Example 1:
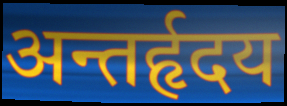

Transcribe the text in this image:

अन्तर्हृदय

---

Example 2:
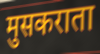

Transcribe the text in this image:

मुसकराता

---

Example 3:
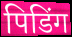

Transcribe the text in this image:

पिडिंग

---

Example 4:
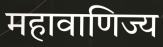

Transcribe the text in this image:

महावाणिज्‍य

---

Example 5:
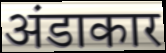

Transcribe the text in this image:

अंडाकार